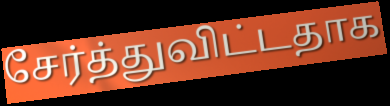
சேர்த்துவிட்டதாக